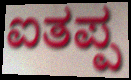
ಐತಪ್ಪ